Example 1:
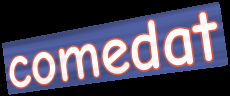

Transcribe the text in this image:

comedat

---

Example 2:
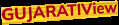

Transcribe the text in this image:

GUJARATIView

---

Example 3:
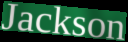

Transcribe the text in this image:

Jackson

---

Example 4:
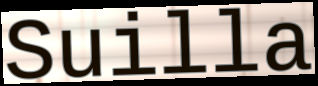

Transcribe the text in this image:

Suilla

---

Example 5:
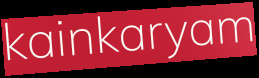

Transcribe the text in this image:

kainkaryam